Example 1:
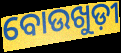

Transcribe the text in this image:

ବୋଉଖୁଡ଼ୀ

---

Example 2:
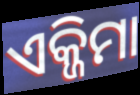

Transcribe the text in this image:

ଏକ୍ଜିମା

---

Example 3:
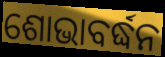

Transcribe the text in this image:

ଶୋଭାବର୍ଦ୍ଧନ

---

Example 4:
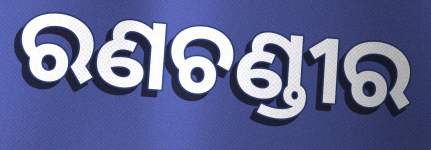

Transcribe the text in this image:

ରଣଚଣ୍ଡୀର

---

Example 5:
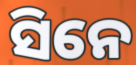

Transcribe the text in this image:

ସିନେ